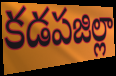
కడపజిల్లా